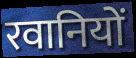
रवानियों